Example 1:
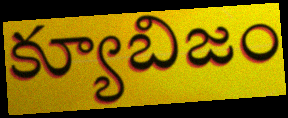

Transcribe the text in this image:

క్యూబిజం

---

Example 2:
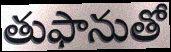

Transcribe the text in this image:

తుఫానుతో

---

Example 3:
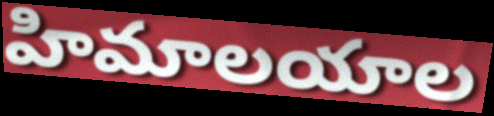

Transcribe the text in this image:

హిమాలయాల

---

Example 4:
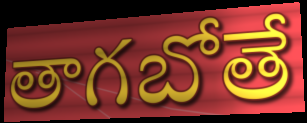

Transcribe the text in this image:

తాగబోతే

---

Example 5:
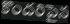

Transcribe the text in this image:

కొందరిపైన